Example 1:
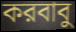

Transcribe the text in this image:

করবাবু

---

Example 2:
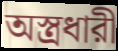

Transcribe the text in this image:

অস্ত্রধারী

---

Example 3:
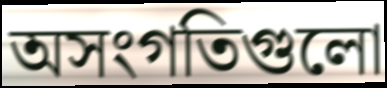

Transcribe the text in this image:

অসংগতিগুলো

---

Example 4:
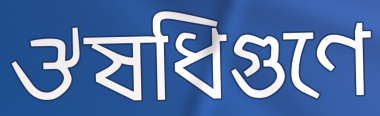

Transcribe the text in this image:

ঔষধিগুণে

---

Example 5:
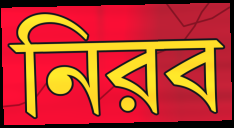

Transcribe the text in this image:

নিরব